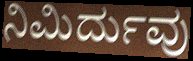
ನಿಮಿರ್ದುವು